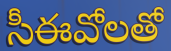
సీఈవోలతో